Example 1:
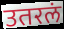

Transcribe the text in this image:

उतरलं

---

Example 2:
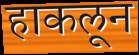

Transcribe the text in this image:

हाकलून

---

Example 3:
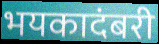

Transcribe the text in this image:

भयकादंबरी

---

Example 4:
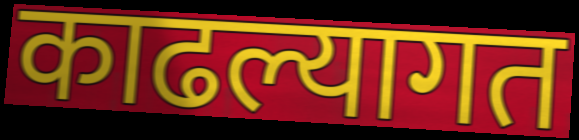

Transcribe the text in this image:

काढल्यागत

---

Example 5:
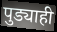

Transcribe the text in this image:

पुड्याही